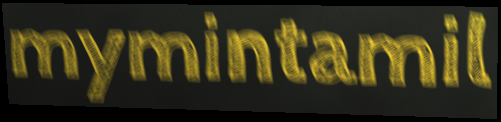
mymintamil